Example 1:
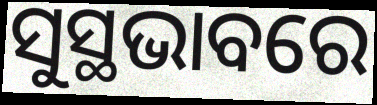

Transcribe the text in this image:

ସୁସ୍ଥଭାବରେ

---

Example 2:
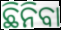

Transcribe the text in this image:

ଛିନିବା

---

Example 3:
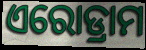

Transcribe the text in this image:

ଏରୋଡ୍ରାମ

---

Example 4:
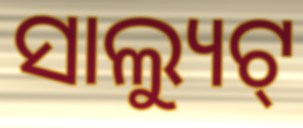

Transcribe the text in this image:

ସାଲ୍ୟୁଟ୍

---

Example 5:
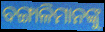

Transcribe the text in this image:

ବଙ୍ଗାଳିମାନଙ୍କୁ